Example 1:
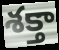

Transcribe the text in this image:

శక్తా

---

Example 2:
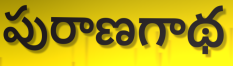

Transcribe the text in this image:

పురాణగాథ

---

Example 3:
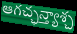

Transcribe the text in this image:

ఆగచ్ఛన్త్యాశ్చ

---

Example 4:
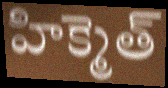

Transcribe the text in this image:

హిక్మెత్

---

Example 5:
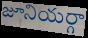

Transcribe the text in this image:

జూనియర్గా